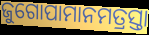
ଜୁଗୋପାମାନମତ୍ରସ୍ତା